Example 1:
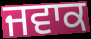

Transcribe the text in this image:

ਜਵਾਕ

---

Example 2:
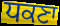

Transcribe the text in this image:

ਧਕਣਾ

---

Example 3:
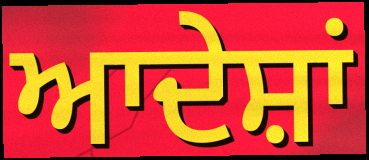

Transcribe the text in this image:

ਆਦੇਸ਼ਾਂ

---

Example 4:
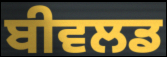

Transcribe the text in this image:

ਬੀਵਲਡ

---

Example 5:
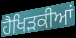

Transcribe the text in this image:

ਹੈਖਿੜਕੀਆਂ